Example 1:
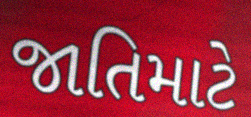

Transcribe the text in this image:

જાતિમાટે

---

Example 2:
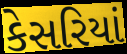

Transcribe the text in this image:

કેસરિયાં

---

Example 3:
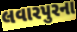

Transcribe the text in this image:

લવારપુરના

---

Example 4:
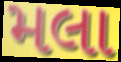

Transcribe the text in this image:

મલા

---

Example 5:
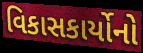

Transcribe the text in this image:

વિકાસકાર્યોનો